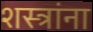
शस्त्रांना